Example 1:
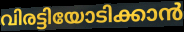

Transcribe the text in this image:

വിരട്ടിയോടിക്കാൻ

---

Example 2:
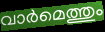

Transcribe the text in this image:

വാർമെത്തും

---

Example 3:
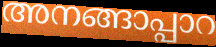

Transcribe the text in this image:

അനങ്ങാപ്പാറ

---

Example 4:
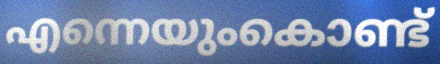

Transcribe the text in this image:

എന്നെയുംകൊണ്ട്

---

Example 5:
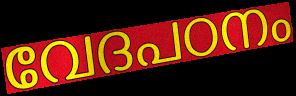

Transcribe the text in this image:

വേദപഠനം